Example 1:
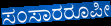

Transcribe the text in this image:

ಸಂಸಾರರೂಪೀ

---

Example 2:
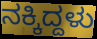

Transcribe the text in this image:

ನಕ್ಕಿದ್ದಳು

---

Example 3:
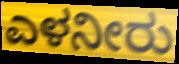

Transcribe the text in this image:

ಎಳನೀರು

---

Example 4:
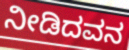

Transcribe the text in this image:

ನೀಡಿದವನ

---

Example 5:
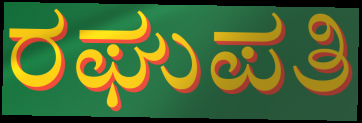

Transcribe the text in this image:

ರಘುಪತಿ